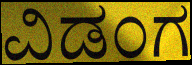
ವಿಡಂಗ